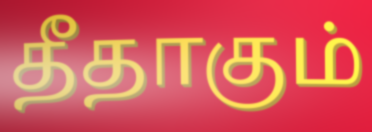
தீதாகும்